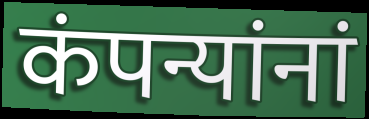
कंपन्यांनां